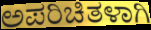
ಅಪರಿಚಿತಳಾಗಿ